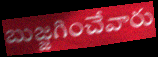
బుజ్జగించేవారు